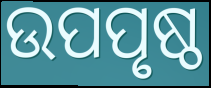
ଉପପୃଷ୍ଠ